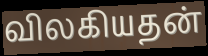
விலகியதன்